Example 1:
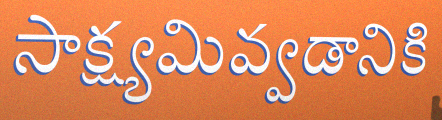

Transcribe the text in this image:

సాక్ష్యమివ్వడానికి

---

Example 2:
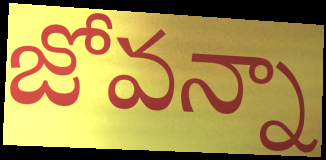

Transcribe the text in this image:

జోవన్నా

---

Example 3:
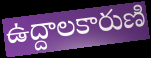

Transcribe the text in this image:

ఉద్దాలకారుణి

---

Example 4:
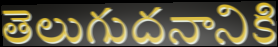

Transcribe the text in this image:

తెలుగుదనానికి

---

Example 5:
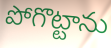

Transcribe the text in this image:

పోగొట్టాను